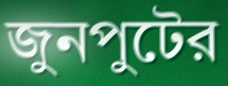
জুনপুটের